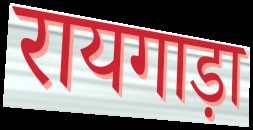
रायगाड़ा